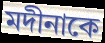
মদীনাকে